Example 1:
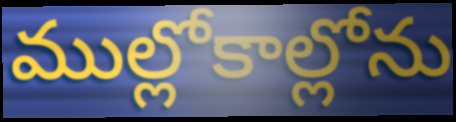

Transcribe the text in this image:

ముల్లోకాల్లోను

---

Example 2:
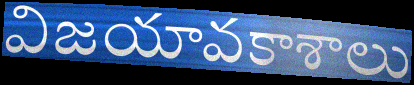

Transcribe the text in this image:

విజయావకాశాలు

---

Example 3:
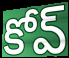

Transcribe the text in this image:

కోవ్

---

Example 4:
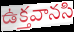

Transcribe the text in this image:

ఉక్తవానసి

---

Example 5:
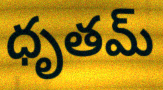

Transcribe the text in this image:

ధృతమ్